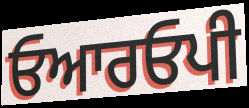
ਓਆਰਓਪੀ